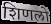
शिणलो